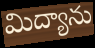
మిద్యాను